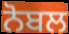
ਨੋਬਲ